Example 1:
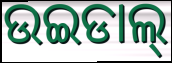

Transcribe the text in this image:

ଉଇଡାଲ୍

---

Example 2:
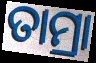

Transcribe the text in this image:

ତାମ୍ରା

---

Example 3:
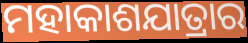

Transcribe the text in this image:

ମହାକାଶଯାତ୍ରାର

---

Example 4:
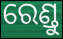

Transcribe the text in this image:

ରେଣ୍ଡୁ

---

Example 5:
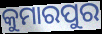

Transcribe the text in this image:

କୁମାରପୁର